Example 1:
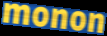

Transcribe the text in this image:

monon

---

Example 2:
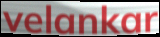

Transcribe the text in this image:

velankar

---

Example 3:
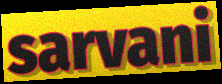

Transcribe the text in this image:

sarvani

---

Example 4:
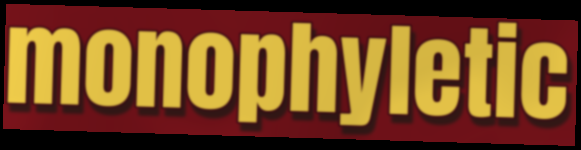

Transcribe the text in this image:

monophyletic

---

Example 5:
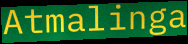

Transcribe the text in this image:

Atmalinga